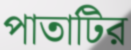
পাতাটির